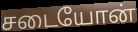
சடையோன்